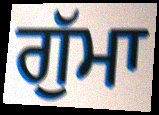
ਗੁੱਮਾ